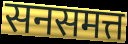
सनसमत्त